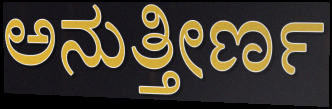
ಅನುತ್ತೀರ್ಣ